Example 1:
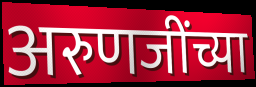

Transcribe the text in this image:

अरुणजींच्या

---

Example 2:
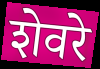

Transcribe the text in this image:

शेवरे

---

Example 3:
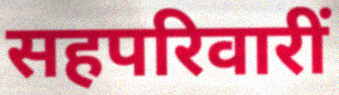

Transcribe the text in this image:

सहपरिवारीं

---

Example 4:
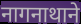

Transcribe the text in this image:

नागनाथाने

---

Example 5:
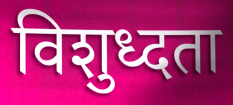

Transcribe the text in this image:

विशुध्दता